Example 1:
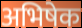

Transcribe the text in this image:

अभिषेक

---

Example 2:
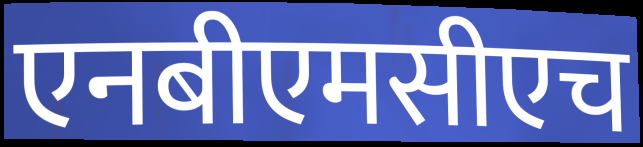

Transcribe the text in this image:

एनबीएमसीएच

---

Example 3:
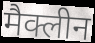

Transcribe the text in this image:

मैक्लीन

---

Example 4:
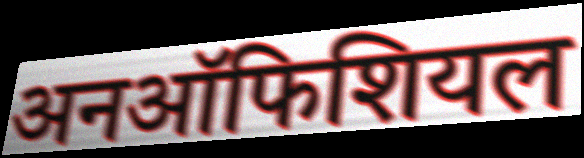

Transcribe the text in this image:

अनऑफिशियल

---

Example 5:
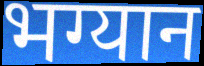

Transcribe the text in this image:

भग्यान